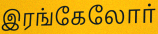
இரங்கேலோர்